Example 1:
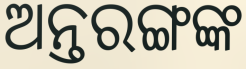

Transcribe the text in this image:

ଅନ୍ତରଙ୍ଗଙ୍କ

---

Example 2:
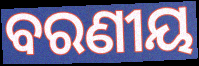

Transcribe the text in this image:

ବରଣୀୟ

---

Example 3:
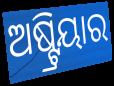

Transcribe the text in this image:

ଅଷ୍ଟ୍ରିୟାର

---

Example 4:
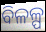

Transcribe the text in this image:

ବିଳଳ୍ପ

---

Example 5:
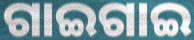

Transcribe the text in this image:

ଗାଇଗାଇ